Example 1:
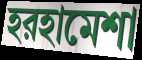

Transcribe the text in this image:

হরহামেশা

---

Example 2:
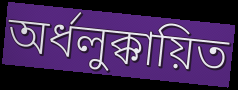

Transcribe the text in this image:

অর্ধলুক্কায়িত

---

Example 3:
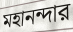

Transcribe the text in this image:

মহানন্দার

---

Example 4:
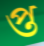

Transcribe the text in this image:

প্ত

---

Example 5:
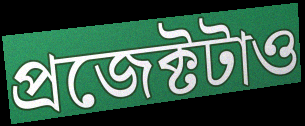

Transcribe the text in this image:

প্রজেক্টটাও